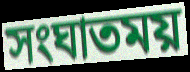
সংঘাতময়